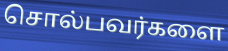
சொல்பவர்களை